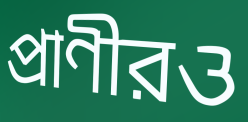
প্রাণীরও